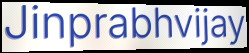
Jinprabhvijay